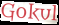
Gokul